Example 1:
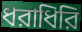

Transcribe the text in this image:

ধরাধিরি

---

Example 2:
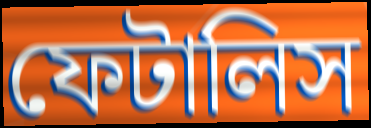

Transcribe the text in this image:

ফেটালিস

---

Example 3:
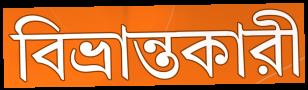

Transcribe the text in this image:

বিভ্রান্তকারী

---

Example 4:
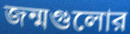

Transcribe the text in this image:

জন্মগুলোর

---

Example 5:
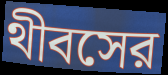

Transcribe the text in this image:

থীবসের